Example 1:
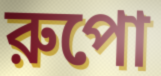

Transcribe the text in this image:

রুপো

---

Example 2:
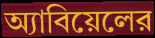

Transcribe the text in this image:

অ্যাবিয়েলের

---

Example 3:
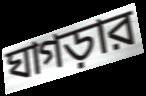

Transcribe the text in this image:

ঘাগড়ার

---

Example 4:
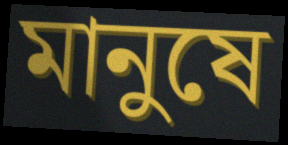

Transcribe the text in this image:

মানুষে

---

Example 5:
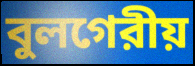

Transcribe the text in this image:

বুলগেরীয়